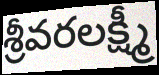
శ్రీవరలక్ష్మీ